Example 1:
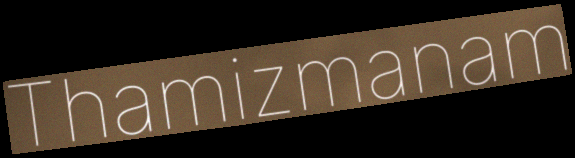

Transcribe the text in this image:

Thamizmanam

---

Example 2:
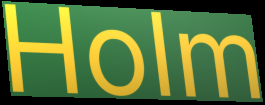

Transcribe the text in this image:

Holm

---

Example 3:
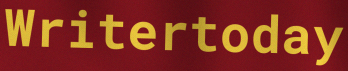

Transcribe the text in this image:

Writertoday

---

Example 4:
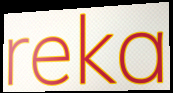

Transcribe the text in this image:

reka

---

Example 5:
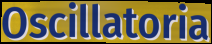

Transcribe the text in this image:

Oscillatoria